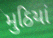
મુઠિયાં